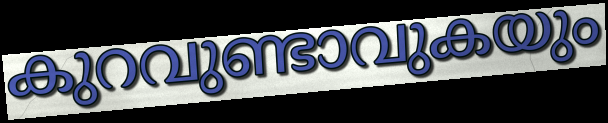
കുറവുണ്ടാവുകയും